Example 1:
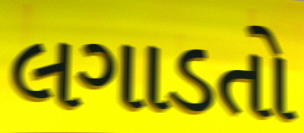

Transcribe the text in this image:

લગાડતો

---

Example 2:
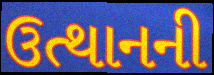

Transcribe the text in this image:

ઉત્થાનની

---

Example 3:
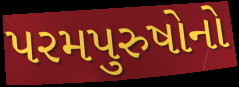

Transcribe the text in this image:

પરમપુરુષોનો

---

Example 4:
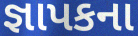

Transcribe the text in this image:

જ્ઞાપકના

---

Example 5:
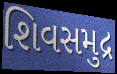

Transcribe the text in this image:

શિવસમુદ્ર